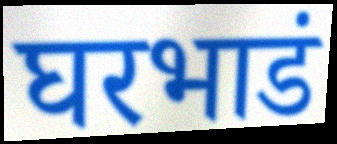
घरभाडं